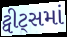
ટ્વીટ્સમાં